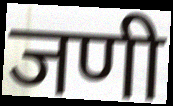
जणी